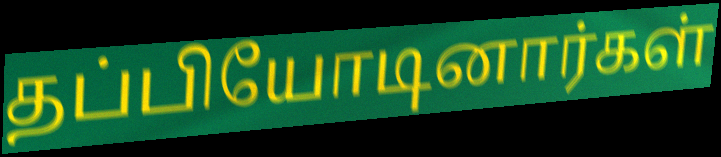
தப்பியோடினார்கள்